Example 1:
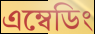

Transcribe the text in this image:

এম্বেডিং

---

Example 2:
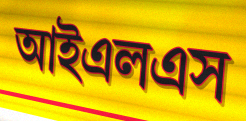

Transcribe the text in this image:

আইএলএস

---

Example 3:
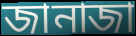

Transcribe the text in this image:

জানাজা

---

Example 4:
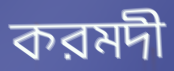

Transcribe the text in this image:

করমদী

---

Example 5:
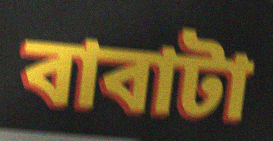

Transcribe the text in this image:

বাবাটা